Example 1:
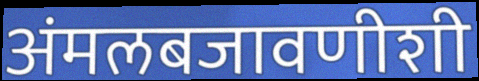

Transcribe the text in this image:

अंमलबजावणीशी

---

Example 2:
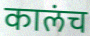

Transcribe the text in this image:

कालंच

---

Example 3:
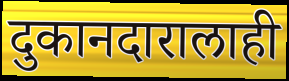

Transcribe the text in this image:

दुकानदारालाही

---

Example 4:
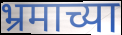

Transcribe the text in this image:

भ्रमाच्या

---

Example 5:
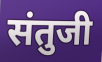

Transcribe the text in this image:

संतुजी